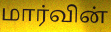
மார்வின்